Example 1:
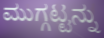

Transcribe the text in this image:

ಮುಗ್ಗಟ್ಟನ್ನು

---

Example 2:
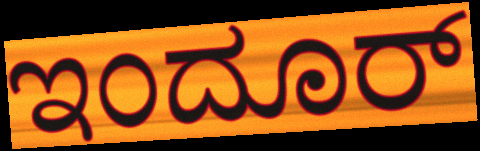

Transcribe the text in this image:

ಇಂದೂರ್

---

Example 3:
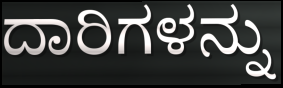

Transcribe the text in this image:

ದಾರಿಗಳನ್ನು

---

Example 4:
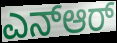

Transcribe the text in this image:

ಎನ್ಆರ್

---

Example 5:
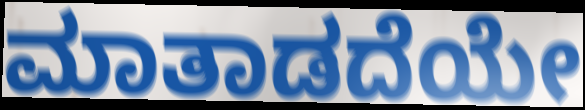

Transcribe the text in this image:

ಮಾತಾಡದೆಯೇ